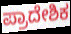
ಪ್ರಾದೇಶಿಕ